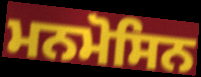
ਮਨਮੋਸਿਨ